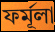
ফৰ্মূলা